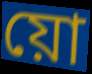
য়ো